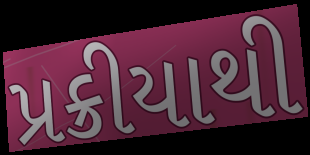
પ્રક્રીયાથી